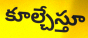
కూల్చేస్తూ